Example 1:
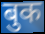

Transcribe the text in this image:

बुक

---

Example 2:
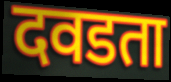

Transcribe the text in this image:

दवडता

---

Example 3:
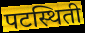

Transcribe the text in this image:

पटस्थिती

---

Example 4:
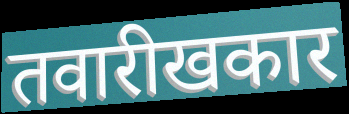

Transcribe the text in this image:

तवारीखकार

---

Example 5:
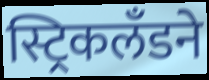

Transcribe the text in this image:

स्ट्रिकलँडने